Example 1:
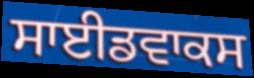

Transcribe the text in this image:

ਸਾਈਡਵਾਕਸ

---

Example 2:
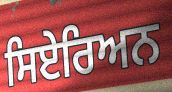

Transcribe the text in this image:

ਸਿਏਰਿਅਨ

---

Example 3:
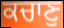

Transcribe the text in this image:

ਕਚਾਣੁ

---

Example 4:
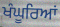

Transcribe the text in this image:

ਖੰਘੂਰਿਆਂ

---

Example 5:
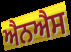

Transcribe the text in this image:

ਐਨਐਸ